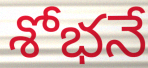
శోభనే